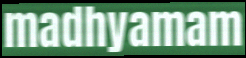
madhyamam